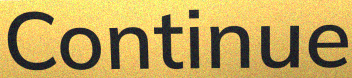
Continue